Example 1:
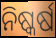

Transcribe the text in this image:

ନିଷ୍କର୍ଷ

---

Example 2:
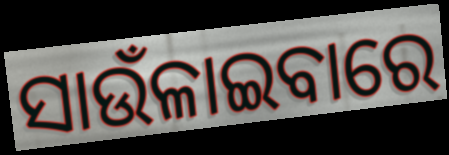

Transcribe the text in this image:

ସାଉଁଳାଇବାରେ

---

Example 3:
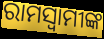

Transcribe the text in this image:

ରାମସ୍ୱାମୀଙ୍କ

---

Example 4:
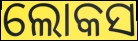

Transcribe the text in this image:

ଲୋକସ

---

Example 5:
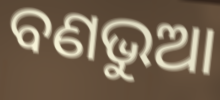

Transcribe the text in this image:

ବଣଭୁଆ